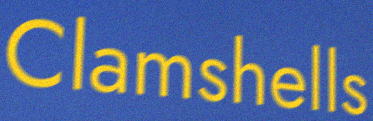
Clamshells